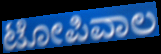
ಟೋಪಿವಾಲ